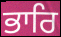
ਭਾਰਿ